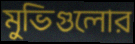
মুভিগুলোর